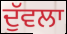
ਦੁੱਵਲਾ